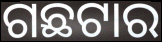
ଗଛଟାର